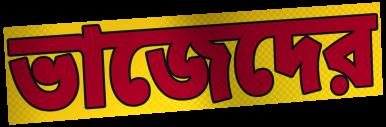
ভাজেদের